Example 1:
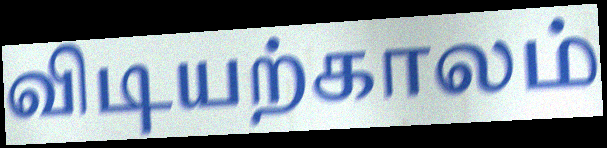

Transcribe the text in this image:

விடியற்காலம்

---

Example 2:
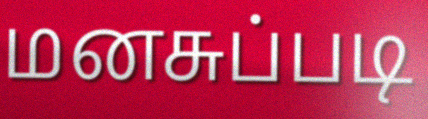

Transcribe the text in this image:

மனசுப்படி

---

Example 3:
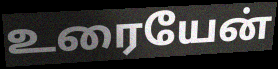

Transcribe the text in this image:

உரையேன்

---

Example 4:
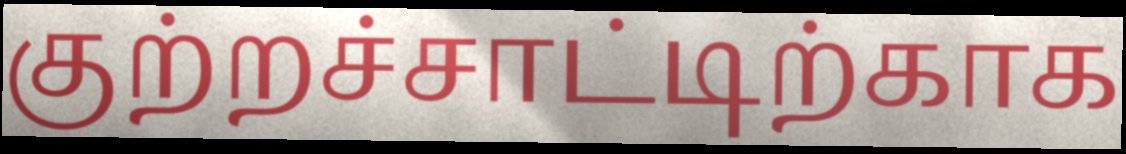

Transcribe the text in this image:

குற்றச்சாட்டிற்காக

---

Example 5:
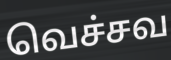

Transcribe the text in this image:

வெச்சவ